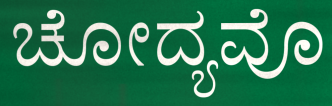
ಚೋದ್ಯವೊ